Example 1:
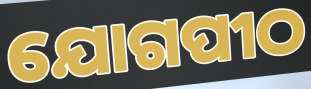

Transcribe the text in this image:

ଯୋଗପୀଠ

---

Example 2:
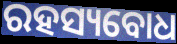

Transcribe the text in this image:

ରହସ୍ୟବୋଧ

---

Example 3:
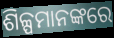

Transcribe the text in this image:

ଶିଳ୍ପମାନଙ୍କରେ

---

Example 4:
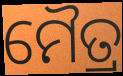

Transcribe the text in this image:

ମୈତ୍ର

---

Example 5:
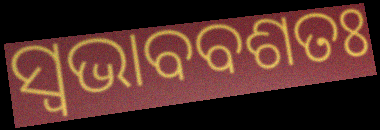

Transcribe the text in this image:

ସ୍ୱଭାବବଶତଃ